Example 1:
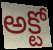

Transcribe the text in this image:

అక్టో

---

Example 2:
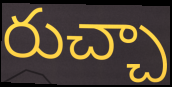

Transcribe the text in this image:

రుచ్చా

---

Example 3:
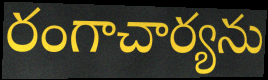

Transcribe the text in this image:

రంగాచార్యను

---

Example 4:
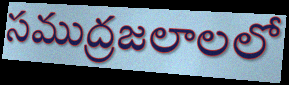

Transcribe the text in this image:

సముద్రజలాలలో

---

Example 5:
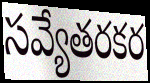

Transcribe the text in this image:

సవ్యేతరకర